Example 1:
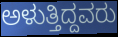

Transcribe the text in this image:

ಅಳುತ್ತಿದ್ದವರು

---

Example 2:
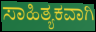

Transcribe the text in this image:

ಸಾಹಿತ್ಯಕವಾಗಿ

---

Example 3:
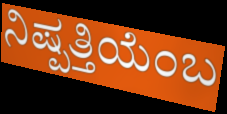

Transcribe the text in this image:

ನಿಷ್ಪತ್ತಿಯೆಂಬ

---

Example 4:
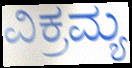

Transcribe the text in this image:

ವಿಕ್ರಮ್ಯ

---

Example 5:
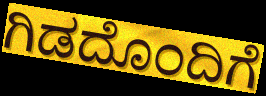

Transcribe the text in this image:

ಗಿಡದೊಂದಿಗೆ